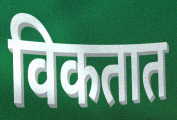
विकतात